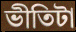
ভীতিটা